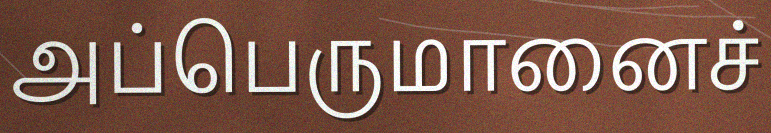
அப்பெருமானைச்